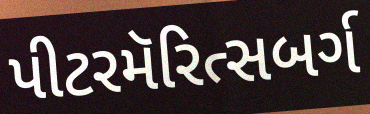
પીટરમૅરિત્સબર્ગ